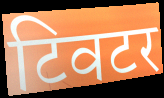
टिवटर